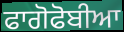
ਫਾਗੋਫੋਬੀਆ